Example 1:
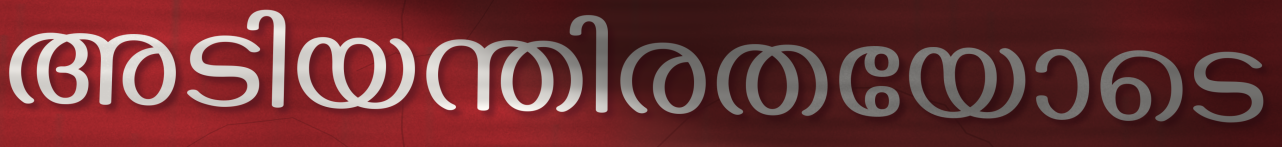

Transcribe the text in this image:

അടിയന്തിരതയോടെ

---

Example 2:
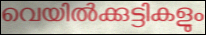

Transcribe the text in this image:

വെയിൽക്കുട്ടികളും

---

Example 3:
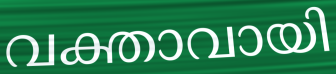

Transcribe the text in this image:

വക്താവായി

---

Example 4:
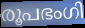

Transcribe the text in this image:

രൂപഭംഗി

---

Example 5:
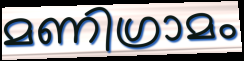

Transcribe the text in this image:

മണിഗ്രാമം